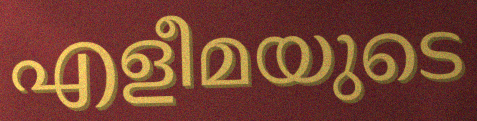
എളീമയുടെ